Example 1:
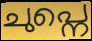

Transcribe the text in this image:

ചുപ്നെ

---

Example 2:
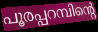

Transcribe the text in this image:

പൂരപ്പറമ്പിന്റെ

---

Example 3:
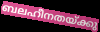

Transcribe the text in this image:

ബലഹീനതയ്ക്കു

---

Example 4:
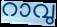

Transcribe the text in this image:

റാവു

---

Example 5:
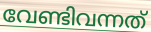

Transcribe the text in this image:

വേണ്ടിവന്നത്